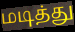
மடித்து